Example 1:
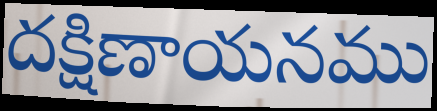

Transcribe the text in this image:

దక్షిణాయనము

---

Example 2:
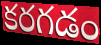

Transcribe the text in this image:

కరగడం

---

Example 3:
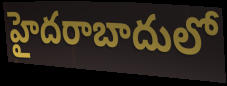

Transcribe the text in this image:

హైదరాబాదులో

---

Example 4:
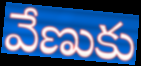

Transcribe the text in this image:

వేణుకు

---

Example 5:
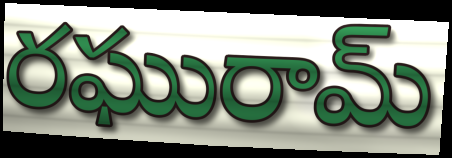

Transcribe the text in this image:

రఘురామ్